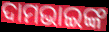
ଦାମଭାଇଙ୍କ